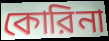
কোরিনা